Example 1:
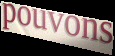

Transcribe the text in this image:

pouvons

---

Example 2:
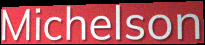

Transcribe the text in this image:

Michelson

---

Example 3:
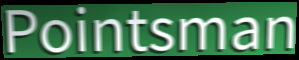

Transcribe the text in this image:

Pointsman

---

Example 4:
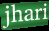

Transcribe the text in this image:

jhari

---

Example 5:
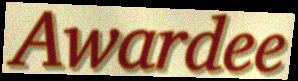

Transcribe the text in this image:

Awardee